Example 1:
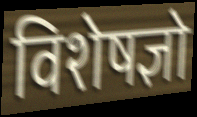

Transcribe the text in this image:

विशेषज्ञो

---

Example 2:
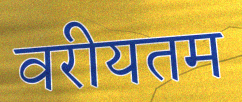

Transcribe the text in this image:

वरीयतम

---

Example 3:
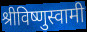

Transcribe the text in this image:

श्रीविष्णुस्वामी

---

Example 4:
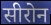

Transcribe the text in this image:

सीरोन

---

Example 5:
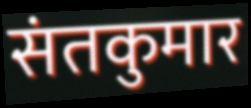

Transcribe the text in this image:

संतकुमार